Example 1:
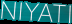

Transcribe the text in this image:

NIYATI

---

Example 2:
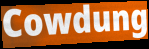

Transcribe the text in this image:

Cowdung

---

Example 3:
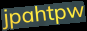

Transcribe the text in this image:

jpahtpw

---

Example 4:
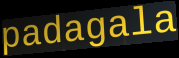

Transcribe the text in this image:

padagala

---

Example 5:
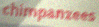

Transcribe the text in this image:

chimpanzees